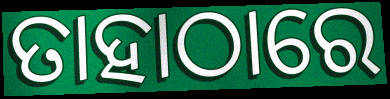
ତାହାଠାରେ